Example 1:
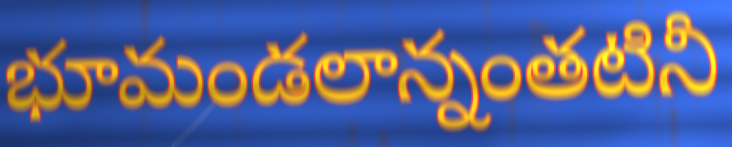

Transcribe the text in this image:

భూమండలాన్నంతటినీ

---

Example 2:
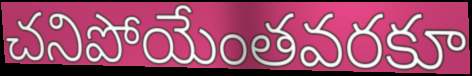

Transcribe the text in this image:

చనిపోయేంతవరకూ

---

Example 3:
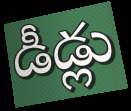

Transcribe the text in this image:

డీడ్లు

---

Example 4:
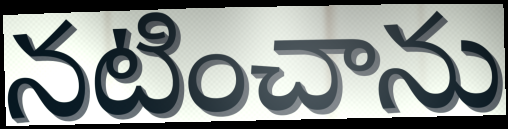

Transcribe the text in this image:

నటించాను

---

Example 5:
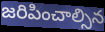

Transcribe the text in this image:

జరిపించాల్సిన